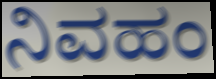
ನಿವಹಂ